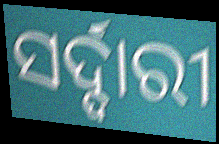
ସର୍ଦ୍ଦାରୀ